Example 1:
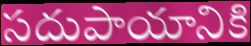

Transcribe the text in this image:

సదుపాయానికి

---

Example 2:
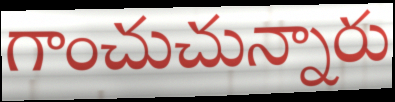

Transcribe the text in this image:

గాంచుచున్నారు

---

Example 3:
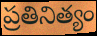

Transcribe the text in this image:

ప్రతినిత్యం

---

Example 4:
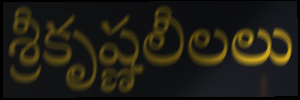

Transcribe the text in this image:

శ్రీకృష్ణలీలలు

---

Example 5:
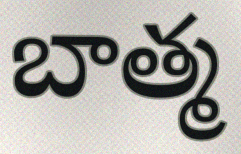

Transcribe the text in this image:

బాత్మ